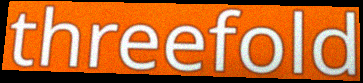
threefold